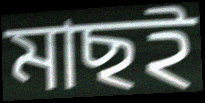
মাছই